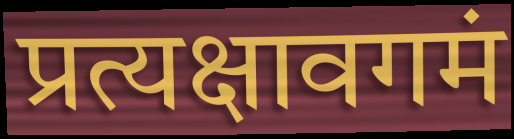
प्रत्यक्षावगमं